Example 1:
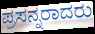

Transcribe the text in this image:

ಪ್ರಸನ್ನರಾದರು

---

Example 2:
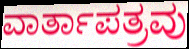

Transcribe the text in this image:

ವಾರ್ತಾಪತ್ರವು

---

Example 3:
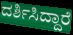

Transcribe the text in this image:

ದರ್ಶಿಸಿದ್ದಾರೆ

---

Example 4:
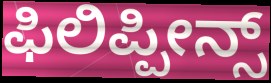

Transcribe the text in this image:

ಫಿಲಿಪ್ಪೀನ್ಸ್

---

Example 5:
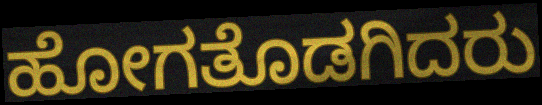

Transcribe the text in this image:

ಹೋಗತೊಡಗಿದರು